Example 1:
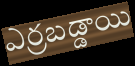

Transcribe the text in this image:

ఎర్రబడ్డాయి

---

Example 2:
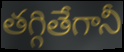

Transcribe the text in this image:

తగ్గితేగానీ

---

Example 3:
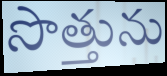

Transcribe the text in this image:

సొత్తును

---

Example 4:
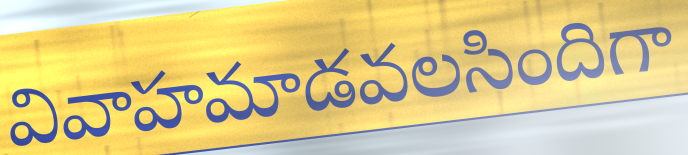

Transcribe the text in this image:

వివాహమాడవలసిందిగా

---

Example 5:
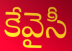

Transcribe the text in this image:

కేవైసీ